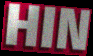
HIN